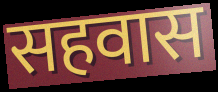
सहवास